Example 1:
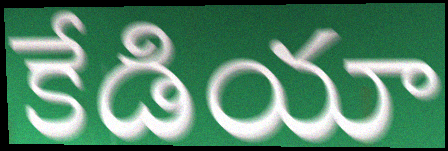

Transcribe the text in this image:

కేడియా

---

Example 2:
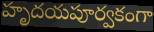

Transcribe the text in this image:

హృదయపూర్వకంగా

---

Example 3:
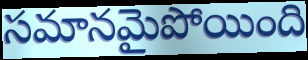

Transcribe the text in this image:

సమానమైపోయింది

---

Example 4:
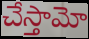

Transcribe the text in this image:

చేస్తామో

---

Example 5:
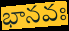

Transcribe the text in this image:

భానవః